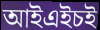
আইএইচই